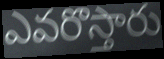
ఎవరొస్తారు